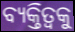
ବ୍ୟକ୍ତିତ୍ୱକୁ